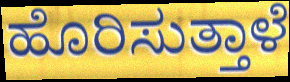
ಹೊರಿಸುತ್ತಾಳೆ